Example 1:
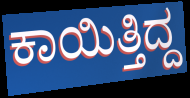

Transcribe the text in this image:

ಕಾಯಿತ್ತಿದ್ದ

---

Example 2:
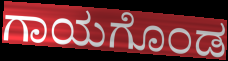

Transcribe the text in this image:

ಗಾಯಗೊಂಡ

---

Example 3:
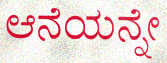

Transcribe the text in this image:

ಆನೆಯನ್ನೇ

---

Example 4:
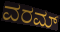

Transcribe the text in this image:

ವರಮ್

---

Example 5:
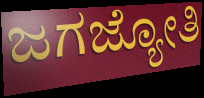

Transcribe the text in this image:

ಜಗಜ್ಯೋತಿ